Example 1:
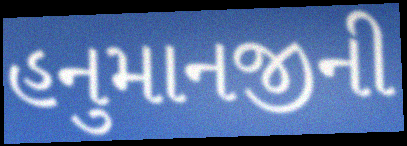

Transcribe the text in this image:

હનુમાનજીની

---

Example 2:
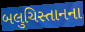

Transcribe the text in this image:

બલુચિસ્તાનના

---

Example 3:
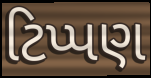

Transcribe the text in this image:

ટિપ્પણ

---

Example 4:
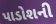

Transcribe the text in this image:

પાડોશની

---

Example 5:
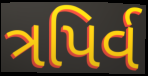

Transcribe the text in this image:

ત્રપિર્વ